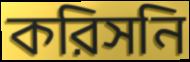
করিসনি